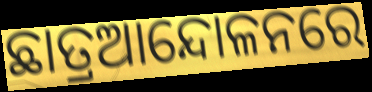
ଛାତ୍ରଆନ୍ଦୋଳନରେ